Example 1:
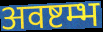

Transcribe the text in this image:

अवष्टम्भ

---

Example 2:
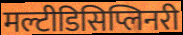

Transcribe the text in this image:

मल्टीडिसिप्लिनरी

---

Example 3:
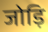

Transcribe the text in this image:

जोड़ि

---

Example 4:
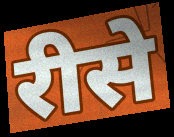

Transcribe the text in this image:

रीसे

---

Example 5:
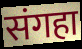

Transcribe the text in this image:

संगहा